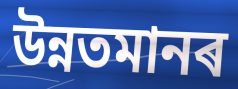
উন্নতমানৰ